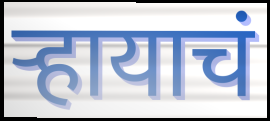
ऱ्हायाचं